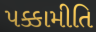
પક્કામીતિ